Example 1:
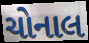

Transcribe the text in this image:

ચોનાલ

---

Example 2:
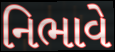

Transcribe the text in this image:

નિભાવે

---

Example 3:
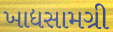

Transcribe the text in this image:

ખાદ્યસામગ્રી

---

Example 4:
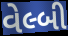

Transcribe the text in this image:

વેલ્બી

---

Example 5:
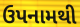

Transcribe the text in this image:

ઉપનામથી